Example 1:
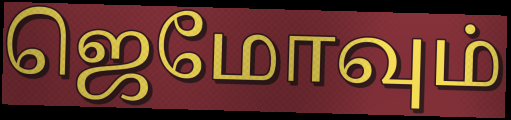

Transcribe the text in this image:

ஜெமோவும்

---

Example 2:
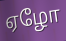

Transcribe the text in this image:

ஏழோ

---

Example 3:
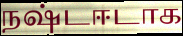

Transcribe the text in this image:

நஷ்டஈடாக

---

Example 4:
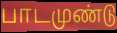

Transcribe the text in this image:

பாடமுண்டு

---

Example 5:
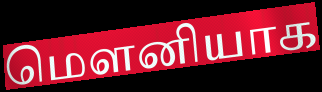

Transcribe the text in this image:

மெளனியாக